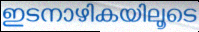
ഇടനാഴികയിലൂടെ